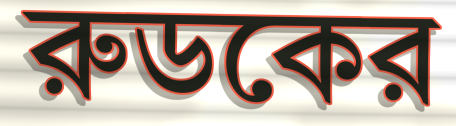
রুডকের